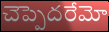
చెప్పెదరేమో